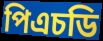
পিএচডি